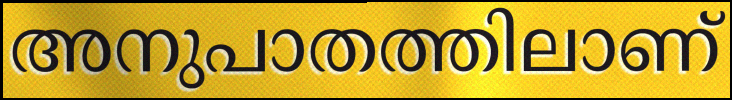
അനുപാതത്തിലാണ്